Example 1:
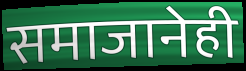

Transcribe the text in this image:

समाजानेही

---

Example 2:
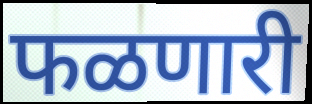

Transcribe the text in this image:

फळणारी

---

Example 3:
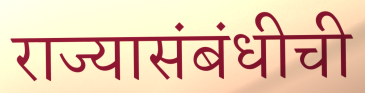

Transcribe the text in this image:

राज्यासंबंधीची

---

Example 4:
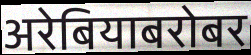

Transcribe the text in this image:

अरेबियाबरोबर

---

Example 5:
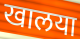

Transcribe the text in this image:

खालया